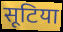
सूटिया